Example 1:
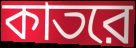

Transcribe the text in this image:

কাতরে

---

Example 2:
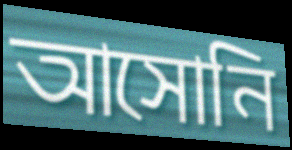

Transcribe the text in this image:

আসোনি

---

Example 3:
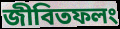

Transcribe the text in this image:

জীবিতফলং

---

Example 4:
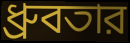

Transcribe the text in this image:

ধ্রুবতার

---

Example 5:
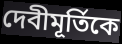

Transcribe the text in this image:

দেবীমূর্তিকে